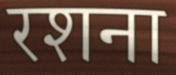
रशना